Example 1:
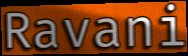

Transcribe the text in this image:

Ravani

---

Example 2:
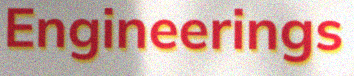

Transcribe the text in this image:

Engineerings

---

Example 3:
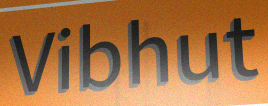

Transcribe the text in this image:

Vibhut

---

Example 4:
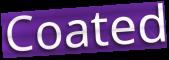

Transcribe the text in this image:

Coated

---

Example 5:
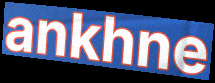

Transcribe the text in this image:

ankhne